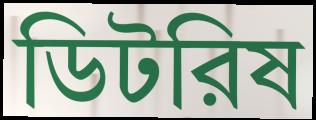
ডিটরিষ